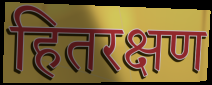
हितरक्षण